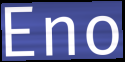
Eno